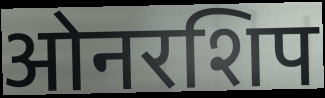
ओनरशिप